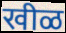
खीळ